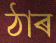
ঠাৰ